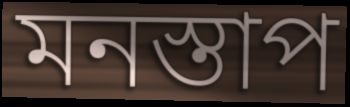
মনস্তাপ